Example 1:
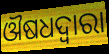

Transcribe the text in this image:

ଔଷଧଦ୍ବାରା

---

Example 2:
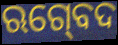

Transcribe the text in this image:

ଋଗ୍‍ବେଦ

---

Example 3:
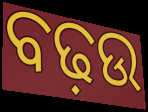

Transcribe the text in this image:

ବଢ଼ଉ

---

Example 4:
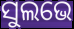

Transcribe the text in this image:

ସୁଲଭେ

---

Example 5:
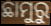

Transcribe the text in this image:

ଛାମୁରୁ